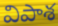
విపాశ